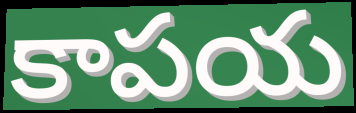
కాపయ